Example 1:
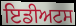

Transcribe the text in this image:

ਇਡੀਅਟਸ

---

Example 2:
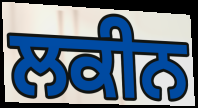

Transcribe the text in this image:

ਲਕੀਨ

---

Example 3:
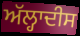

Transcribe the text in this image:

ਅੱਲ੍ਹਾਦੀਸ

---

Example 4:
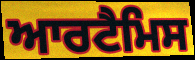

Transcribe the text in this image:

ਆਰਟੈਮਿਸ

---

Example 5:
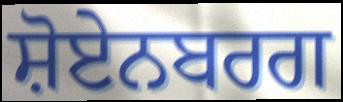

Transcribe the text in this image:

ਸ਼ੋਏਨਬਰਗ